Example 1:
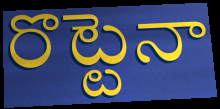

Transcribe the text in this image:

రొట్టెనా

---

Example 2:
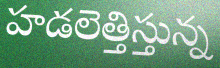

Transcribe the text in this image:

హడలెత్తిస్తున్న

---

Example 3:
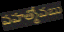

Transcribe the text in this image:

పహత్మోవబు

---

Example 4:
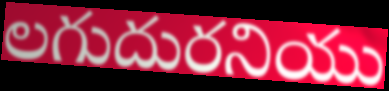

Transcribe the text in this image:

లగుదురనియు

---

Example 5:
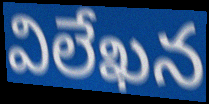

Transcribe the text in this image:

విలేఖన